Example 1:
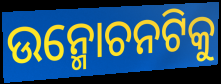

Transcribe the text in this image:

ଉନ୍ମୋଚନଟିକୁ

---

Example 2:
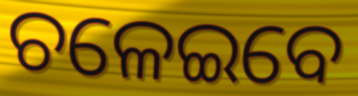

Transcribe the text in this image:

ଚଳେଇବେ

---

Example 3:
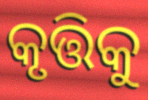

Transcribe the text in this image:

କୃତ୍ତିକୁ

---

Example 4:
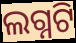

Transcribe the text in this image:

ଲଗ୍ନଟି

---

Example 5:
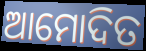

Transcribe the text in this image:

ଆମୋଦିତ